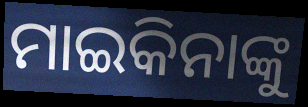
ମାଇକିନାଙ୍କୁ